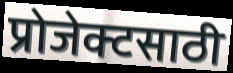
प्रोजेक्टसाठी